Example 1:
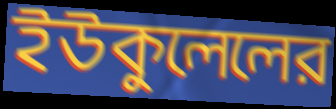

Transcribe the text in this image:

ইউকুলেলের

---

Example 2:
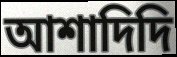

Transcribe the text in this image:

আশাদিদি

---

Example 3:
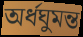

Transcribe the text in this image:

অর্ধঘুমন্ত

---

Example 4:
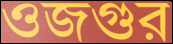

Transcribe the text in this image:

ওজগুর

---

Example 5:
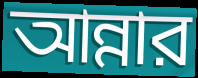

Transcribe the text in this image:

আন্নার